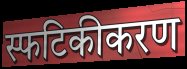
स्फटिकीकरण